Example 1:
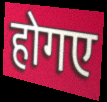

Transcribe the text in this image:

होगए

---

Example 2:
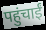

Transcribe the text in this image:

पहुंचाईं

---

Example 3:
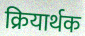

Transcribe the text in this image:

क्रियार्थक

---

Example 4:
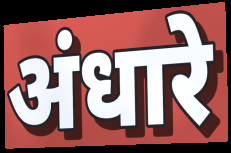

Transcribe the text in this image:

अंधारे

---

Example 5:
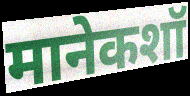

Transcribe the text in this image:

मानेकशॉ